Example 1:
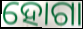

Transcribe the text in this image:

ହୋଗା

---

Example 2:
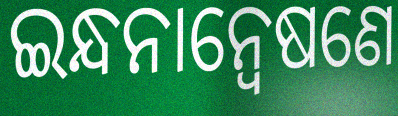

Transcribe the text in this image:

ଇନ୍ଧନାନ୍ଵେଷଣେ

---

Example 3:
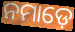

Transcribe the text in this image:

ନମାଡ଼େ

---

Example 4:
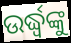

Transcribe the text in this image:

ଉର୍ଦ୍ଧ୍ୱଙ୍କୁ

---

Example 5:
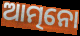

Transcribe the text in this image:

ଆତ୍ମନୋ